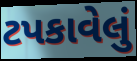
ટપકાવેલું